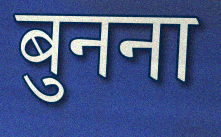
बुनना